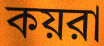
কয়রা